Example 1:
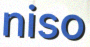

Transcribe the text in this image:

niso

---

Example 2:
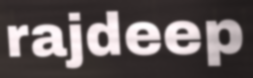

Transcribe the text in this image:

rajdeep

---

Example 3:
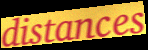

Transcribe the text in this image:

distances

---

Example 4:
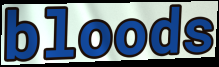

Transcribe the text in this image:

bloods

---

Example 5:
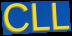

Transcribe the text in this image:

CLL